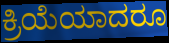
ಕ್ರಿಯೆಯಾದರೂ